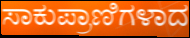
ಸಾಕುಪ್ರಾಣಿಗಳಾದ